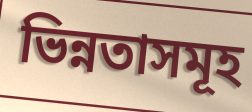
ভিন্নতাসমূহ